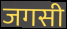
जगसी